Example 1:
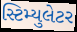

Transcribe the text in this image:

સ્ટિમ્યુલેટર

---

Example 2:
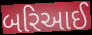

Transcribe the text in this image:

બરિઆઈ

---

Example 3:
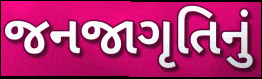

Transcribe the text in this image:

જનજાગૃતિનું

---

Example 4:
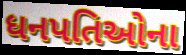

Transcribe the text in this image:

ધનપતિઓના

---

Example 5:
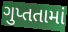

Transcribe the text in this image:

ગુપ્તતામાં